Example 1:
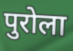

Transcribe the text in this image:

पुरोला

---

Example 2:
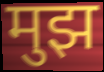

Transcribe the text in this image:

मुझ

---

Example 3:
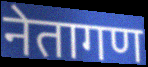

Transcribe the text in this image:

नेतागण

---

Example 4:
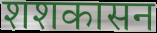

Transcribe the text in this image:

शशकासन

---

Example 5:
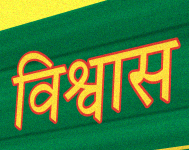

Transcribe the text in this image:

विश्वास